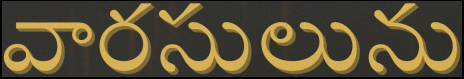
వారసులును